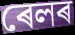
ৰেলৰ